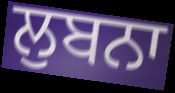
ਲੁਬਨਾ